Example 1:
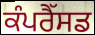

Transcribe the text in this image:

ਕੰਪਰੈੱਸਡ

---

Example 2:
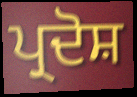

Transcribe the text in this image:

ਪ੍ਰਦੋਸ਼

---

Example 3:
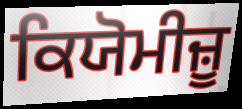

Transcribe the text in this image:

ਕਿਯੋਮੀਜ਼ੂ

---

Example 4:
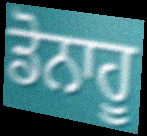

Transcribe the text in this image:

ਡੋਨਾਹੂ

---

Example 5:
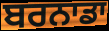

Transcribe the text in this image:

ਬਰਨਾਡਾ